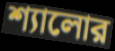
শ্যালোর